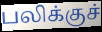
பலிக்குச்